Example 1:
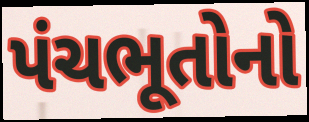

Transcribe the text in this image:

પંચભૂતોનો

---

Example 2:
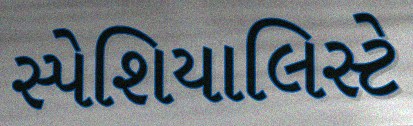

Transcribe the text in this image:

સ્પેશિયાલિસ્ટે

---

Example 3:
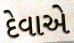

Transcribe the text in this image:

દેવાએ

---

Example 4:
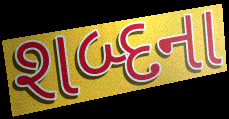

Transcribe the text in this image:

શબ્દના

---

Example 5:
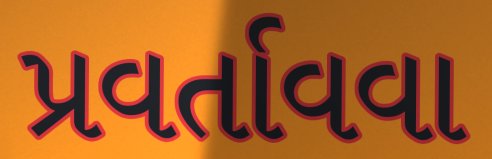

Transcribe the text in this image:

પ્રવર્તાવવા